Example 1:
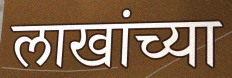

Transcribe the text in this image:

लाखांच्या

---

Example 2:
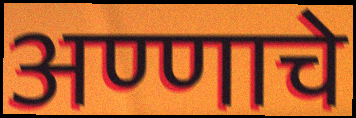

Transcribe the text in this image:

अण्णाचे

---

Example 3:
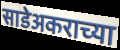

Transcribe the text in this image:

साडेअकराच्या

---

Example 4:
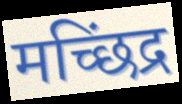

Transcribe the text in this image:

मच्छिंद्र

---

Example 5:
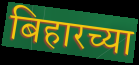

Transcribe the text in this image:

बिहारच्या